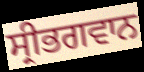
ਸ੍ਰੀਭਗਵਾਨ